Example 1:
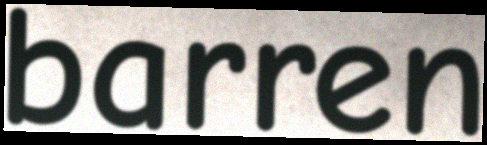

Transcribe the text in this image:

barren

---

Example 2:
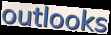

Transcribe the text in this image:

outlooks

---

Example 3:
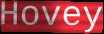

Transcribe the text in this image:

Hovey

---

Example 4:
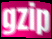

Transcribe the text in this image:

gzip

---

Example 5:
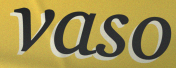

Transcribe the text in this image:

vaso